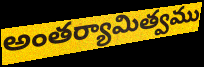
అంతర్యామిత్వము